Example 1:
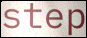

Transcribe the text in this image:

step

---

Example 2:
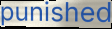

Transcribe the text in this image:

punished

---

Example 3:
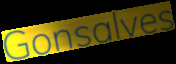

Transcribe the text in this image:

Gonsalves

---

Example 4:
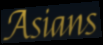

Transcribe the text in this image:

Asians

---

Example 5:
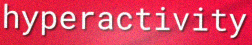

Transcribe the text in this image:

hyperactivity